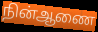
நின்ஆணை